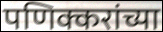
पणिक्करांच्या